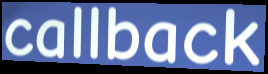
callback